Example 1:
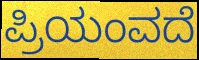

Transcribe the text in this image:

ಪ್ರಿಯಂವದೆ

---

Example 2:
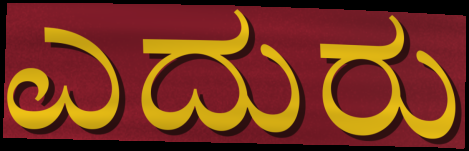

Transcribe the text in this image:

ಎದುರು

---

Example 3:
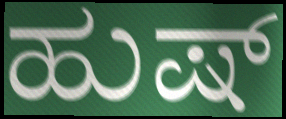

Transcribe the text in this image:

ಹುಷ್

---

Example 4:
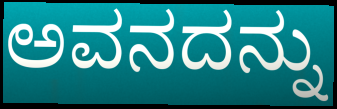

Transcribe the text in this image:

ಅವನದನ್ನು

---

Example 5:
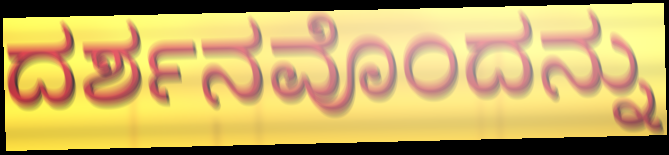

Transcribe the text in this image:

ದರ್ಶನವೊಂದನ್ನು